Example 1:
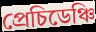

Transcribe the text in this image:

প্ৰেচিডেঞ্চি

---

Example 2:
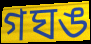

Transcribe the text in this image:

গঘঙ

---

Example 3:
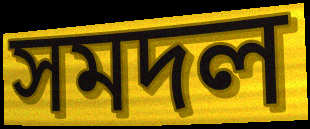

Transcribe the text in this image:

সমদল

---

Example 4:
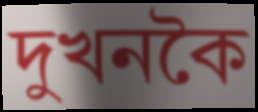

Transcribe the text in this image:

দুখনকৈ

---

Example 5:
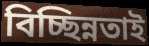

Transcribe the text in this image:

বিচ্ছিন্নতাই